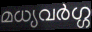
മധ്യവർഗ്ഗ